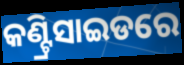
କଣ୍ଟ୍ରିସାଇଡରେ